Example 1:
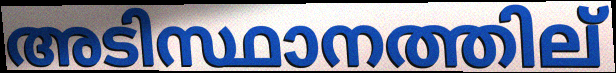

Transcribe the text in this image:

അടിസ്ഥാനത്തില്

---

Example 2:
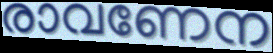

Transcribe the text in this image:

രാവണേന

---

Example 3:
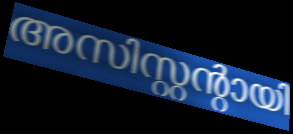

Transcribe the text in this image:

അസിസ്റ്റന്റായി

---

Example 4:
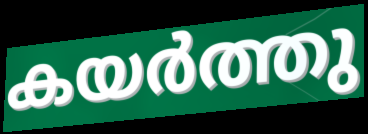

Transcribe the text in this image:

കയർത്തു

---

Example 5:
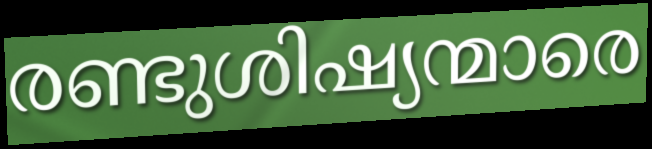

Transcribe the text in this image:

രണ്ടുശിഷ്യന്മാരെ